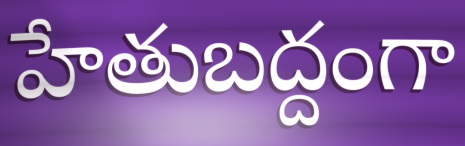
హేతుబద్దంగా